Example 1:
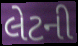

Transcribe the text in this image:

લેટની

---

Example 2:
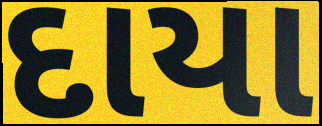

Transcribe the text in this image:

દાયા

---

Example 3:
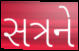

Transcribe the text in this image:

સત્રને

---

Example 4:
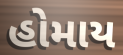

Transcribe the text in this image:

હોમાય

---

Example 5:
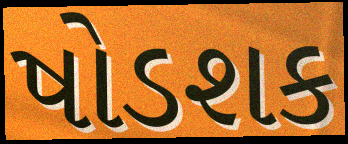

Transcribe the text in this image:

ષોડશક